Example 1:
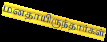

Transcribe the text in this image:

மனதாயிருந்தார்கள்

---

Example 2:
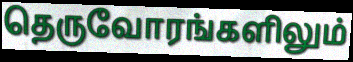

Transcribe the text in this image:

தெருவோரங்களிலும்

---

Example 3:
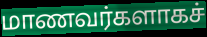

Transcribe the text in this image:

மாணவர்களாகச்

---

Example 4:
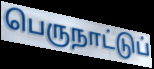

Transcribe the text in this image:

பெருநாட்டுப்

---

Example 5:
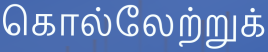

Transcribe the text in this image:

கொல்லேற்றுக்